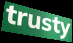
trusty